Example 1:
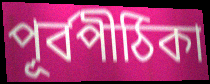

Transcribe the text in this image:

পূর্বপীঠিকা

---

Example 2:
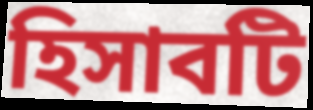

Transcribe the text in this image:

হিসাবটি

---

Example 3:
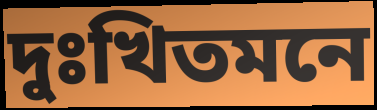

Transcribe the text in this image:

দুঃখিতমনে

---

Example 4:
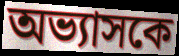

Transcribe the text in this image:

অভ্যাসকে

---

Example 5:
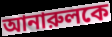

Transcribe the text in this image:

আনারুলকে